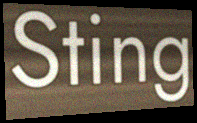
Sting